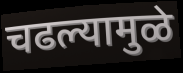
चढल्यामुळे